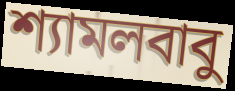
শ্যামলবাবু